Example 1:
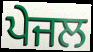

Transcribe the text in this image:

ਪੇਜਲ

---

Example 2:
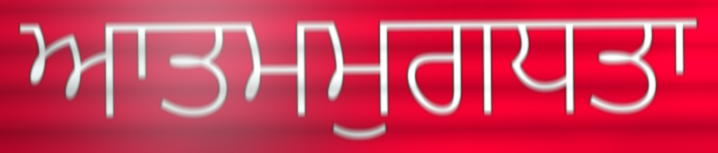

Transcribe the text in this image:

ਆਤਮਮੁਗਧਤਾ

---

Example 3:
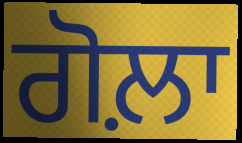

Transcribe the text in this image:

ਗੋਲ਼ਾ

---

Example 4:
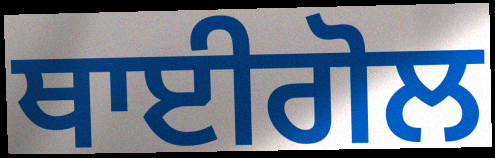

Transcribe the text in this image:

ਥਾਈਗੋਲ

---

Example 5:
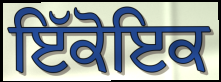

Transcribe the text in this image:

ਇੱਕੋਇਕ